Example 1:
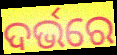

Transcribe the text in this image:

ଦର୍ଭରେ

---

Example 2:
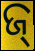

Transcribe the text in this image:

ଜ୍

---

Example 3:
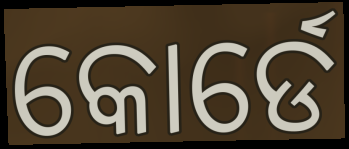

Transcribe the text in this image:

କୋର୍ଡେ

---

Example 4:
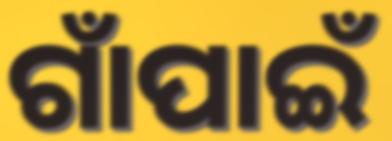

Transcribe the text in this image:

ଗାଁପାଇଁ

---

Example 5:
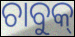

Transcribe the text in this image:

ଚାବୁକ୍